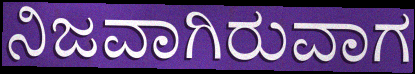
ನಿಜವಾಗಿರುವಾಗ